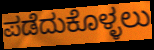
ಪಡೆದುಕೊಳ್ಳಲು